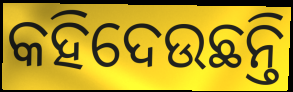
କହିଦେଉଛନ୍ତି